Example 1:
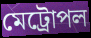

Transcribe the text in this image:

মেট্রোপল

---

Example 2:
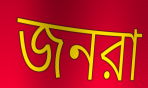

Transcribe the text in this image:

জনরা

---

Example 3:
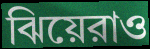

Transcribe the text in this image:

ঝিয়েরাও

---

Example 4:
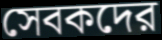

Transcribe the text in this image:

সেবকদের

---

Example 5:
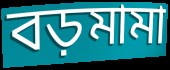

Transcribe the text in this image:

বড়মামা